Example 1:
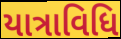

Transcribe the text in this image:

યાત્રાવિધિ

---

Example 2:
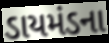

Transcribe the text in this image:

ડાયમંડના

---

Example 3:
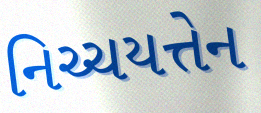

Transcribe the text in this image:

નિચ્ચયત્તેન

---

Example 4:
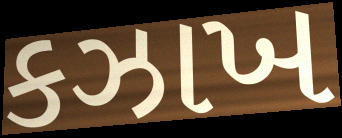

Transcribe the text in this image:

કઝાખ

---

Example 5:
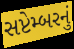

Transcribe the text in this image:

સપ્ટેમ્બરનું